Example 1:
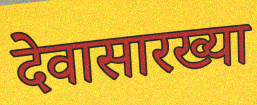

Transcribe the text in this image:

देवासारख्या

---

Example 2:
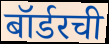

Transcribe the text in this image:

बॉर्डरची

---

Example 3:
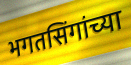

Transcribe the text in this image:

भगतसिंगांच्या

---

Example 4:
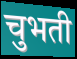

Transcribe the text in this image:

चुभती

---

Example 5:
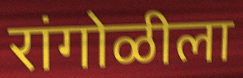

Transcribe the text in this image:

रांगोळीला